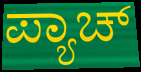
ಪ್ಯಾಚ್